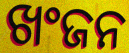
ଖଂଜନ